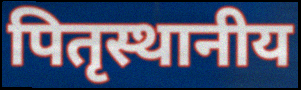
पितृस्थानीय